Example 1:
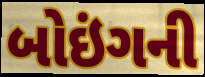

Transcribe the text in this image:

બોઇંગની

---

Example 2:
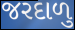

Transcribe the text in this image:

જરદાળુ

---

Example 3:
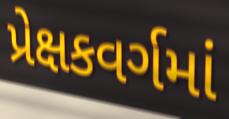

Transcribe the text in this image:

પ્રેક્ષકવર્ગમાં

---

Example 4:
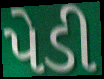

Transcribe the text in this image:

પેડી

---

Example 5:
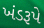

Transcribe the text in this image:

ખંડરૂપે